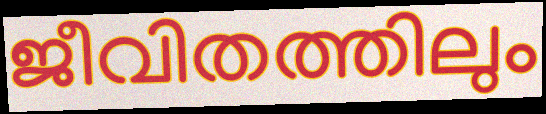
ജീവിതത്തിലും